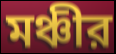
মঞ্চীর